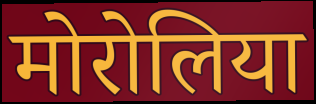
मोरोलिया